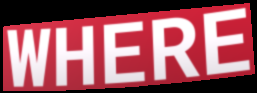
WHERE